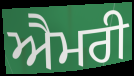
ਐਮਰੀ